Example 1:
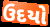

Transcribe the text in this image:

ઉદયો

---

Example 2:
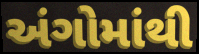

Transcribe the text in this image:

અંગોમાંથી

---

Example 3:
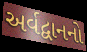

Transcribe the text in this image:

અર્વદ્વાનનો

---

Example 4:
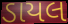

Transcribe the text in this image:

ડાયલ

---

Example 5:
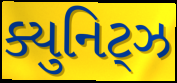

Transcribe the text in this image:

ક્યુનિટ્ઝ